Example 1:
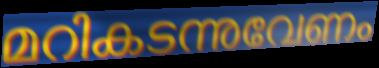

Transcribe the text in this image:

മറികടന്നുവേണം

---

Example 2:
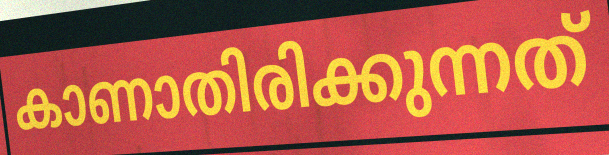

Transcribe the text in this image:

കാണാതിരിക്കുന്നത്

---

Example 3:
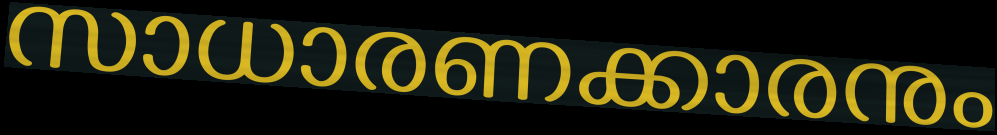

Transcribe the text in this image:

സാധാരണക്കാരനും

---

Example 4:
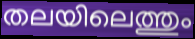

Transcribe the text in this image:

തലയിലെത്തും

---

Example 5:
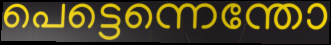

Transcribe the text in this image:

പെട്ടെന്നെന്തോ